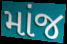
માંજ